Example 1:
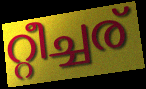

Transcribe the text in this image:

റ്റീച്ചര്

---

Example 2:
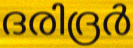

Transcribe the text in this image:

ദരിദ്രർ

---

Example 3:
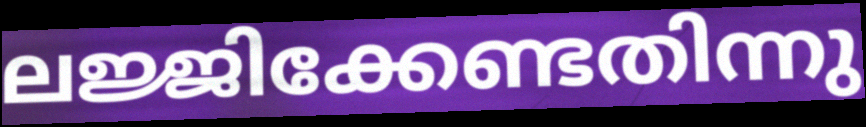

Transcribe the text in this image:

ലജ്ജിക്കേണ്ടതിന്നു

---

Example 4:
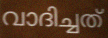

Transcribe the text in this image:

വാദിച്ചത്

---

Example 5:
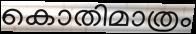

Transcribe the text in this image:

കൊതിമാത്രം